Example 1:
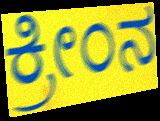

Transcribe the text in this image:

ಕ್ರೀಂನ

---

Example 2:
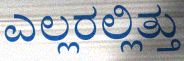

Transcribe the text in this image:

ಎಲ್ಲರಲ್ಲಿತ್ತು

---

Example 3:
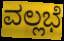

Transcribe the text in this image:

ವಲ್ಲಭೆ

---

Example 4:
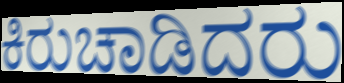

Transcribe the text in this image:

ಕಿರುಚಾಡಿದರು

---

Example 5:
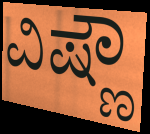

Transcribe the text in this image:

ವಿಷ್ಣೌ